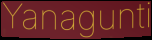
Yanagunti